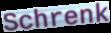
Schrenk